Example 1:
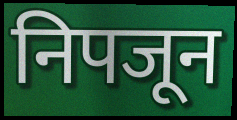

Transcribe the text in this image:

निपजून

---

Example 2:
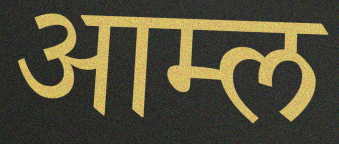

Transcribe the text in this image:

आम्ल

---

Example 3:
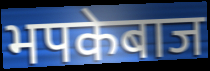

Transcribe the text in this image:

भपकेबाज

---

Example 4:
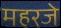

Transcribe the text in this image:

महरजे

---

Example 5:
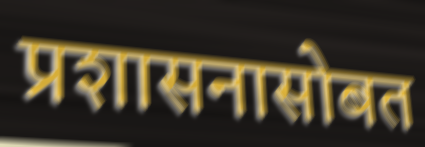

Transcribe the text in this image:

प्रशासनासोबत